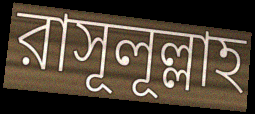
রাসূলূল্লাহ